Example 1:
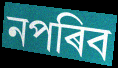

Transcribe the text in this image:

নপৰিব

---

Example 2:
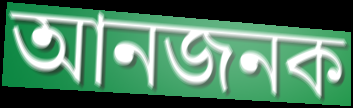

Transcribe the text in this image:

আনজনক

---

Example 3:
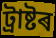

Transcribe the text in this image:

ট্ৰাষ্টৰ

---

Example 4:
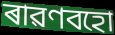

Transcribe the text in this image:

ৰাৱণবহো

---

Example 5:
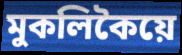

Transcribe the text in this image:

মুকলিকৈয়ে